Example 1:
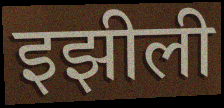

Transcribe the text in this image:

इझीली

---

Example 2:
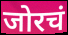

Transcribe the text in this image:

जोरचं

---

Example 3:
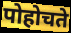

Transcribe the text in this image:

पोहोचते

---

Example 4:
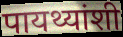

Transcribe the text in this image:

पायथ्यांशी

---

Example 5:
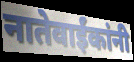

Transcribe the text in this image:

नातेवाईंकांनी